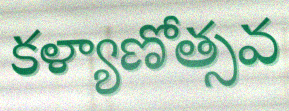
కళ్యాణోత్సవ